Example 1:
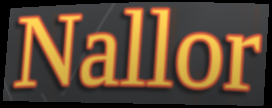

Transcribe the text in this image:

Nallor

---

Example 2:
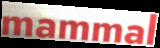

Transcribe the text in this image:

mammal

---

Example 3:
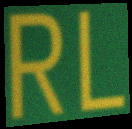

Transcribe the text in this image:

RL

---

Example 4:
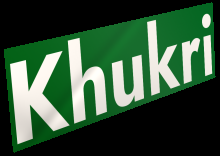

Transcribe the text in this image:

Khukri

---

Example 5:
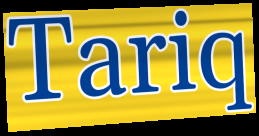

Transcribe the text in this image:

Tariq